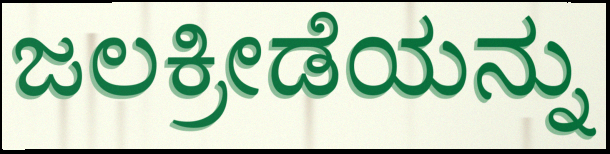
ಜಲಕ್ರೀಡೆಯನ್ನು